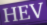
HEV